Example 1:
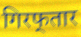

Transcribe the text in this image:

गिरफ्‌तार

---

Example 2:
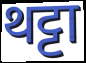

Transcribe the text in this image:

थट्टा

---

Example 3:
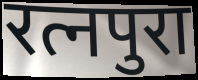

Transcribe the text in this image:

रत्नपुरा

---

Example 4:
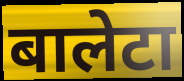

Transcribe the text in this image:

बालेटा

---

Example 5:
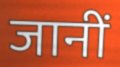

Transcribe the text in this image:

जानीं